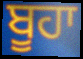
ਬੂਹਾ